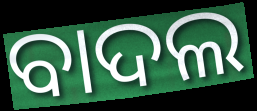
ବାଦଲ